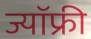
ज्यॉफ्री